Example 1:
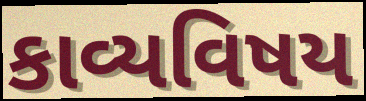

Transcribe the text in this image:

કાવ્યવિષય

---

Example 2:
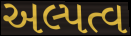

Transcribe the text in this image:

અલ્પત્વ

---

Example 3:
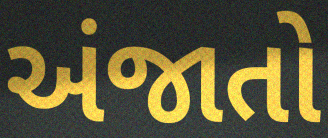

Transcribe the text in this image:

અંજાતો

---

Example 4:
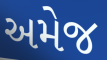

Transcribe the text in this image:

અમેજ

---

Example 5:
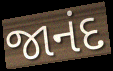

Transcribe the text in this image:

જાનંદ